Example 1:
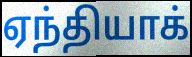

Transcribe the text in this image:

ஏந்தியாக்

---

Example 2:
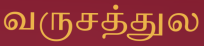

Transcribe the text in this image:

வருசத்துல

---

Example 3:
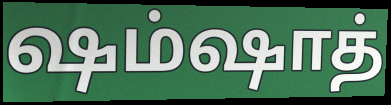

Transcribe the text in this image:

ஷம்ஷாத்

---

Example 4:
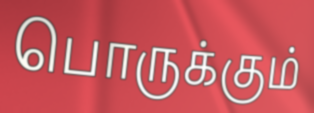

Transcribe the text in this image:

பொருக்கும்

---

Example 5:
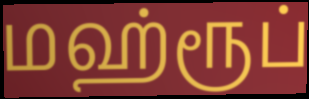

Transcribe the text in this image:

மஹ்ரூப்